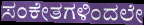
ಸಂಕೇತಗಳಿಂದಲೇ